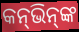
କନ୍‌ଭିନ୍‌ଙ୍କ